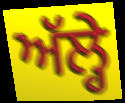
ਅੱਲ੍ਹੇ